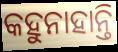
କହୁନାହାନ୍ତି